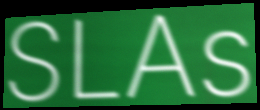
SLAs